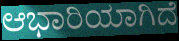
ಆಭಾರಿಯಾಗಿದೆ